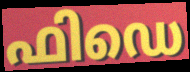
ഫിഡെ